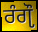
ਰੰਗੵੌ